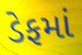
ડેફમાં